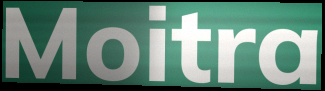
Moitra